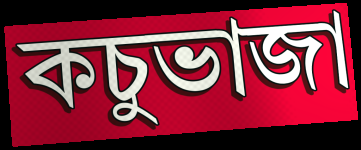
কচুভাজা